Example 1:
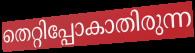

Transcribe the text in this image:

തെറ്റിപ്പോകാതിരുന്ന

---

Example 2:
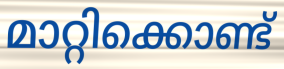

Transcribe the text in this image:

മാറ്റിക്കൊണ്ട്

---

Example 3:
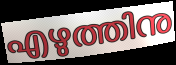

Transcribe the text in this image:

എഴുത്തിനു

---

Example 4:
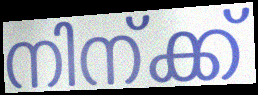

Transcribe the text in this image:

നിന്ക്ക്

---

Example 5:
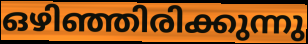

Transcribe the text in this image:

ഒഴിഞ്ഞിരിക്കുന്നു